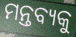
ମନ୍ତବ୍ୟକୁ